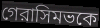
গেরাসিমভকে